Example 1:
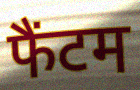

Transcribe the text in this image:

फैंटम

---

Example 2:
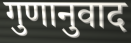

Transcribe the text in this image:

गुणानुवाद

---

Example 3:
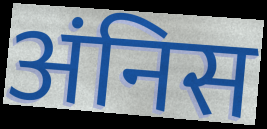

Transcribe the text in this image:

अंनिस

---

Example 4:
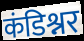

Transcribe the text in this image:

कंडिश्नर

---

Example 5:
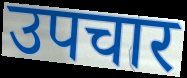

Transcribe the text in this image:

उपचार